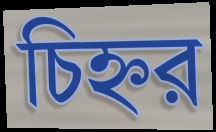
চিহ্নর